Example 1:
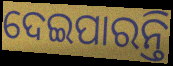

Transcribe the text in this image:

ଦେଇପାରନ୍ତି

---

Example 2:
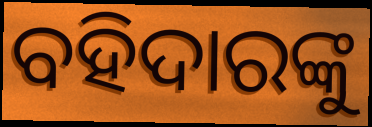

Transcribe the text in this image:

ବହିଦାରଙ୍କୁ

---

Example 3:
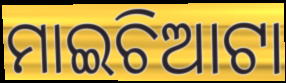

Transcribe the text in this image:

ମାଇଚିଆଟା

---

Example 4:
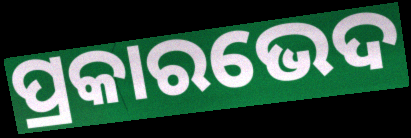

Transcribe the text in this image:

ପ୍ରକାରଭେଦ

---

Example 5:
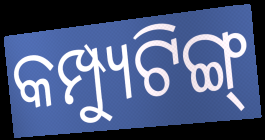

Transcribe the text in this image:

କମ୍ପ୍ୟୁଟିଙ୍ଗ୍